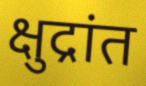
क्षुद्रांत